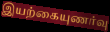
இயற்கையுணர்வு